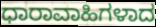
ಧಾರಾವಾಹಿಗಳಾದ